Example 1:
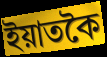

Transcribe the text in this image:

ইয়াতকৈ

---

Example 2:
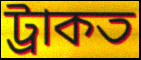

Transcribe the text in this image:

ট্ৰাকত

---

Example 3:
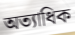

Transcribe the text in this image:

অত্যাধিক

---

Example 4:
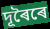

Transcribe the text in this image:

দূৰৈৰে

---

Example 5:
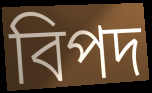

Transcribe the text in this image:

বিপদ